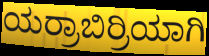
ಯರ್ರಾಬಿರ್ರಿಯಾಗಿ